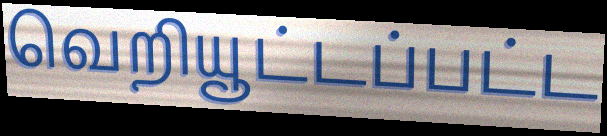
வெறியூட்டப்பட்ட